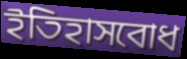
ইতিহাসবোধ